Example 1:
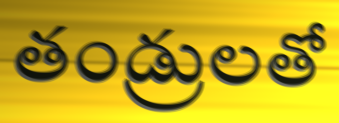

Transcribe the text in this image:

తండ్రులతో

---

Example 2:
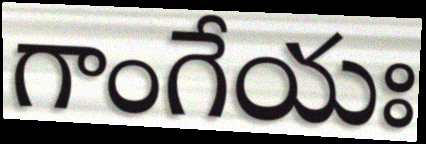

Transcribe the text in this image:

గాంగేయః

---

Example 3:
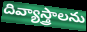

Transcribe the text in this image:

దివ్యాస్త్రాలను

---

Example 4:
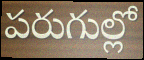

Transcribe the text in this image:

పరుగుల్లో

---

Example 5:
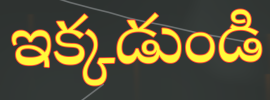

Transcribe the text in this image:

ఇక్కడుండి